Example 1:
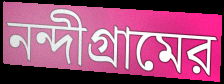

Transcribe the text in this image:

নন্দীগ্রামের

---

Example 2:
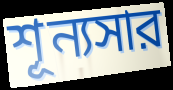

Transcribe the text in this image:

শূন্যসার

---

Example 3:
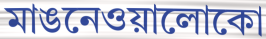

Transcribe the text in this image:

মাঙনেওয়ালোকো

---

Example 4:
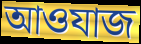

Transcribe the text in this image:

আওযাজ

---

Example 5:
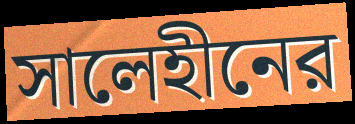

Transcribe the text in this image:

সালেহীনের